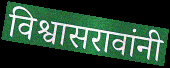
विश्वासरावांनी